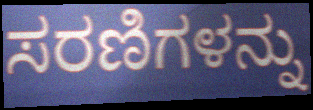
ಸರಣಿಗಳನ್ನು